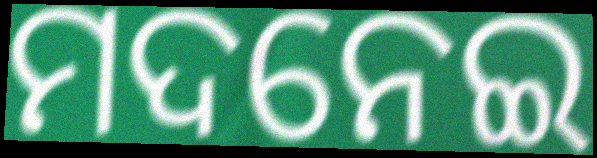
ମଦନେଇ